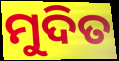
ମୁଦିତ